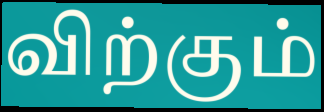
விற்கும்